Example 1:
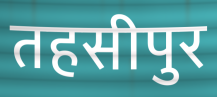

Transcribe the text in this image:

तहसीपुर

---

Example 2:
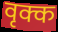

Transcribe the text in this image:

वृक्क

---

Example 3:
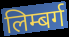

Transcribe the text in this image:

लिम्बर्ग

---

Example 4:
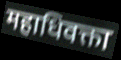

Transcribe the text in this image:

महाधिवक्ता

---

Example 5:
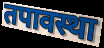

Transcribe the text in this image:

तपावस्था